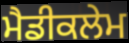
ਮੈਡੀਕਲੇਮ